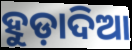
ହୁଡ଼ାଦିଆ